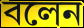
বলেন